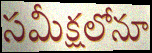
సమీక్షలోనూ